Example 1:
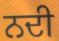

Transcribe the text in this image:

ਨਦੀ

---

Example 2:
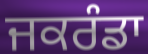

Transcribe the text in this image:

ਜਕਰੰਡਾ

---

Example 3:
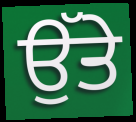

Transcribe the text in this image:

ਉੱਤੇ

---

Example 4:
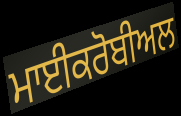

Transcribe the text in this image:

ਮਾਈਕਰੋਬੀਅਲ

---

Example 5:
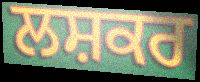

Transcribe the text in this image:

ਲਸ਼ਕਰ